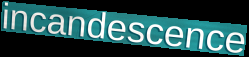
incandescence